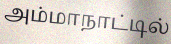
அம்மாநாட்டில்